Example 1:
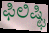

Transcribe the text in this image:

ಫಿಲಿಷ್ಟಿ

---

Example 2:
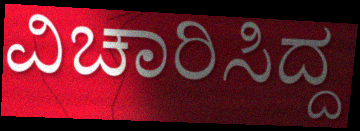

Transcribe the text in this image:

ವಿಚಾರಿಸಿದ್ದ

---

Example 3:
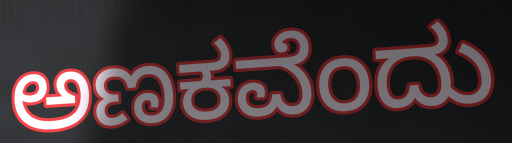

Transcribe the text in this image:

ಅಣಕವೆಂದು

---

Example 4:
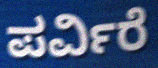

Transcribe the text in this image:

ಪರ್ವಿರೆ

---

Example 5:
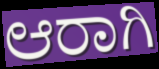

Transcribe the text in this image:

ಆರಾಗಿ